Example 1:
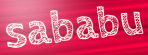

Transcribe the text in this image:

sababu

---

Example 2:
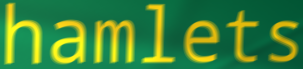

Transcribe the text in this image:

hamlets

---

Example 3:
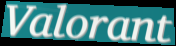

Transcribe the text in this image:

Valorant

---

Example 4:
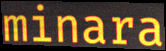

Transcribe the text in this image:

minara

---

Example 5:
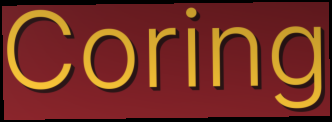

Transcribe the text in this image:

Coring